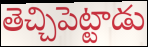
తెచ్చిపెట్టాడు